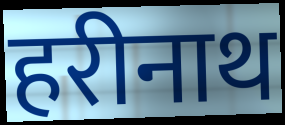
हरीनाथ